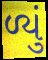
ળ્યું